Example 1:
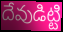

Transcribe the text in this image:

దేవుడిట్టి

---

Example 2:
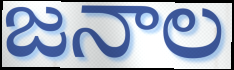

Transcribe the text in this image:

జనాల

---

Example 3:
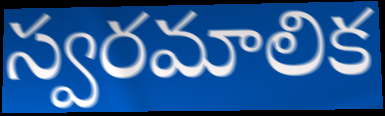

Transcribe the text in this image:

స్వరమాలిక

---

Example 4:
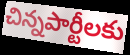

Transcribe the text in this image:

చిన్నపార్టీలకు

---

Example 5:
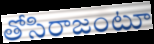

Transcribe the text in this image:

తోసిరాజంటూ